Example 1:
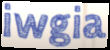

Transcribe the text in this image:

iwgia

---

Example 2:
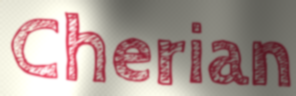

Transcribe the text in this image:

Cherian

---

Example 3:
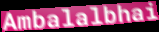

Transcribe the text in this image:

Ambalalbhai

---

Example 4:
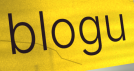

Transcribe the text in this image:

blogu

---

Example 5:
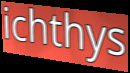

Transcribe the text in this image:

ichthys